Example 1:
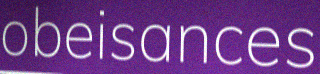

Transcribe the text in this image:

obeisances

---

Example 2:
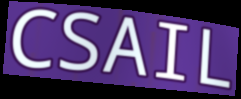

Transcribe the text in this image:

CSAIL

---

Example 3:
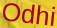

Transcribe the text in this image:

Odhi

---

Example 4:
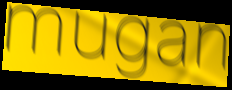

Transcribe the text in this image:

mugan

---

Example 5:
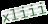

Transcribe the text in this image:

xliii